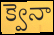
క్వెనా